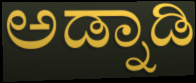
ಅಡ್ನಾಡಿ